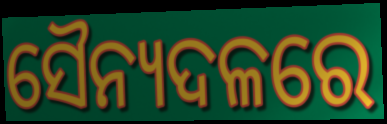
ସୈନ୍ୟଦଳରେ